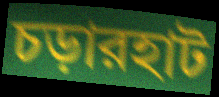
চড়ারহাট